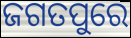
ଜଗତପୁରେ